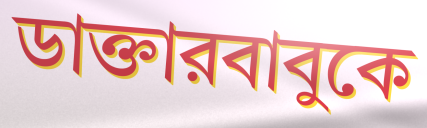
ডাক্তারবাবুকে